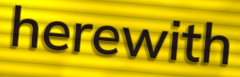
herewith